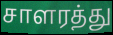
சாளரத்து